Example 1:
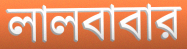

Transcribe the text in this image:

লালবাবার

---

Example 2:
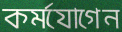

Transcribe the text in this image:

কর্মযোগেন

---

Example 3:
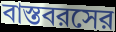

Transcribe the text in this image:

বাস্তবরসের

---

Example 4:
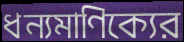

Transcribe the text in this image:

ধন্যমাণিক্যের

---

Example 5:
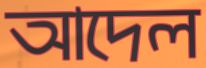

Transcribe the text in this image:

আদেল